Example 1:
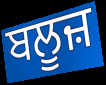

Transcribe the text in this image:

ਬਲੂਜ਼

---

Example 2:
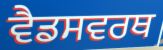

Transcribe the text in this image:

ਵੈਡਸਵਰਥ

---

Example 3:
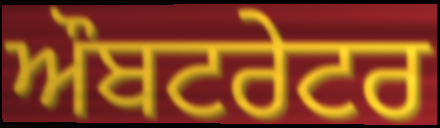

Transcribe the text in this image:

ਔਬਟਰੇਟਰ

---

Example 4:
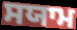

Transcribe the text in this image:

ਸਯਾਮ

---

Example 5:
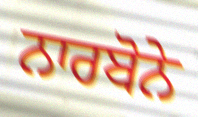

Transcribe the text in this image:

ਨਾਰਬੋਨੇ